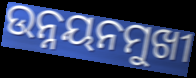
ଉନ୍ନୟନମୁଖୀ